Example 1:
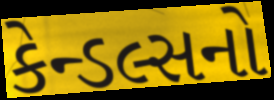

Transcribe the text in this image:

કેન્ડલ્સનો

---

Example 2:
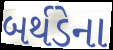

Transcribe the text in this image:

બર્થડેના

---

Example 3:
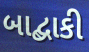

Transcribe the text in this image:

બાદ્બાકી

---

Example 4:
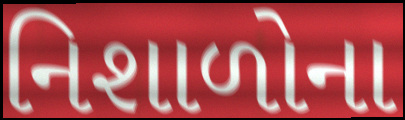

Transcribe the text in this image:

નિશાળોના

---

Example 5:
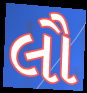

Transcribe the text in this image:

લૌ